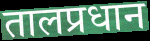
तालप्रधान